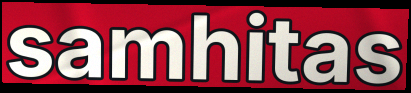
samhitas